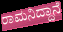
ರಾಮನಿದ್ದಾನೆ